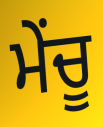
ਮੇਂਚੂ